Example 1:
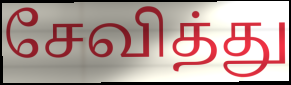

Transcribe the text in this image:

சேவித்து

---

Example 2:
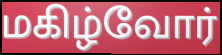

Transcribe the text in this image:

மகிழ்வோர்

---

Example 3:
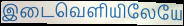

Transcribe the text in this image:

இடைவெளியிலேயே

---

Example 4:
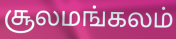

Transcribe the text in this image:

சூலமங்கலம்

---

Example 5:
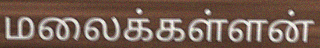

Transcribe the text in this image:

மலைக்கள்ளன்